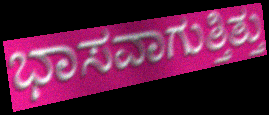
ಭಾಸವಾಗುತ್ತಿತ್ತು